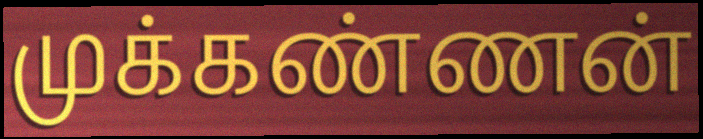
முக்கண்ணன்